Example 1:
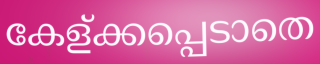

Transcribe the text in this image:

കേള്ക്കപ്പെടാതെ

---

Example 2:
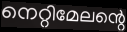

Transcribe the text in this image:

നെറ്റിമേലന്റെ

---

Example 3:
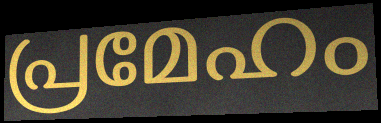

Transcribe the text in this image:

പ്രമേഹം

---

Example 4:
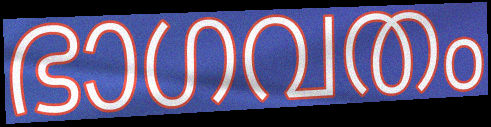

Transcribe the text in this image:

ഭാഗവതം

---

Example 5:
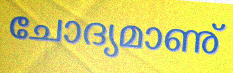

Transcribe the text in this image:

ചോദ്യമാണു്